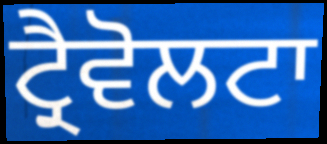
ਟ੍ਰੈਵੋਲਟਾ